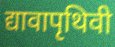
द्यावापृथिवी